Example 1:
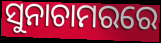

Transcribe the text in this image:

ସୁନାଚାମରରେ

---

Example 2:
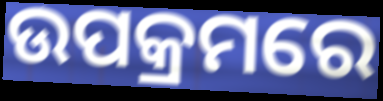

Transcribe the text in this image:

ଉପକ୍ରମରେ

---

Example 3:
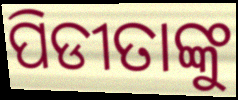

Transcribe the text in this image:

ପିଡୀତାଙ୍କୁ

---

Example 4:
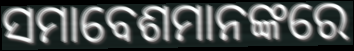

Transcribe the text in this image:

ସମାବେଶମାନଙ୍କରେ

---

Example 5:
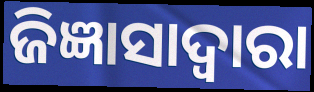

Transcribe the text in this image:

ଜିଜ୍ଞାସାଦ୍ୱାରା